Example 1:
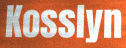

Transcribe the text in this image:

Kosslyn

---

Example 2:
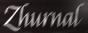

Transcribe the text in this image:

Zhurnal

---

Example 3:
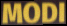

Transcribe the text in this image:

MODI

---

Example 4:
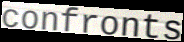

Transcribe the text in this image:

confronts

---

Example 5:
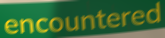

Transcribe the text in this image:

encountered